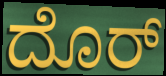
ದೊರ್